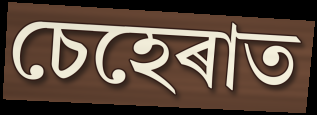
চেহেৰাত